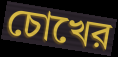
চোখের